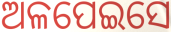
ଅଳପେଇସେ